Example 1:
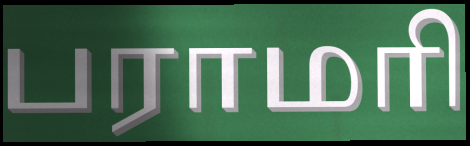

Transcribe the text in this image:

பராமரி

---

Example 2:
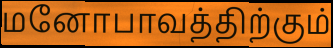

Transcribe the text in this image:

மனோபாவத்திற்கும்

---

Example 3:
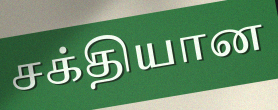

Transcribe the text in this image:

சக்தியான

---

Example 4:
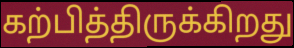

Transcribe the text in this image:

கற்பித்திருக்கிறது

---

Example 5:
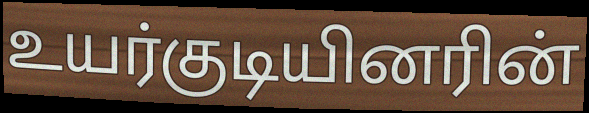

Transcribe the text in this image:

உயர்குடியினரின்